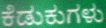
ಕೆಡುಕುಗಳು